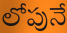
లోపునే